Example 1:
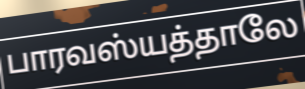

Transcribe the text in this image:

பாரவஸ்யத்தாலே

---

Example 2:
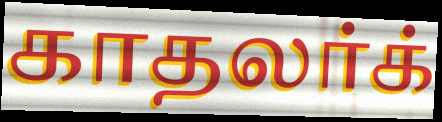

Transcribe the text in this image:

காதலர்க்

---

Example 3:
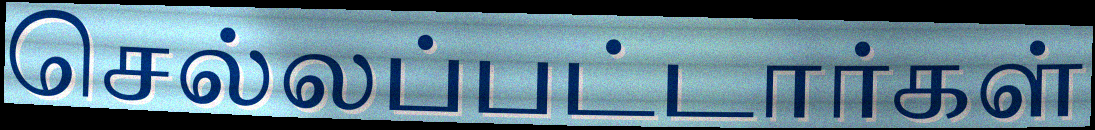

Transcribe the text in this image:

செல்லப்பட்டார்கள்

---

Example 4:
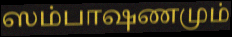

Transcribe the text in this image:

ஸம்பாஷணமும்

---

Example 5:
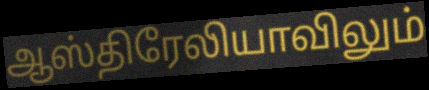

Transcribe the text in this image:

ஆஸ்திரேலியாவிலும்